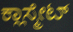
ಕ್ಲಾಸ್ಮೇಟ್